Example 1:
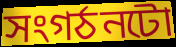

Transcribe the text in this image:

সংগঠনটো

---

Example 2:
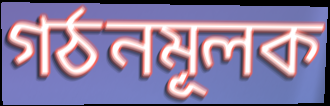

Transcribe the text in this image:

গঠনমূলক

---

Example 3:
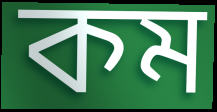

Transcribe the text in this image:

কম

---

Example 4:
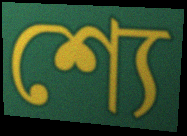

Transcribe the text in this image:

শ্যে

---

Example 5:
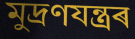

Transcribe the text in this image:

মুদ্ৰণযন্ত্ৰৰ